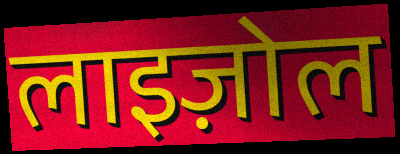
लाइज़ोल